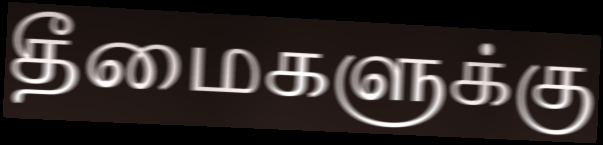
தீமைகளுக்கு